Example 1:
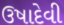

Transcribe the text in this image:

ઉષાદેવી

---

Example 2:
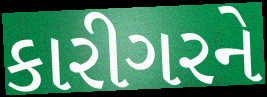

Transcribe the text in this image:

કારીગરને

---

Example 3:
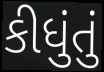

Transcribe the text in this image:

કીધુંતું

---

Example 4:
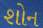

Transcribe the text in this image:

શોન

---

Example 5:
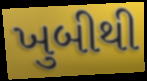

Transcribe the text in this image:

ખુબીથી